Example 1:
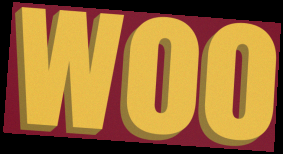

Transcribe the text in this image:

woo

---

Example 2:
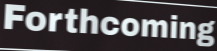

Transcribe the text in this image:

Forthcoming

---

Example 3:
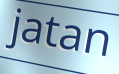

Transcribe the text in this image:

jatan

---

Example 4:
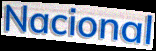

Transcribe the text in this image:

Nacional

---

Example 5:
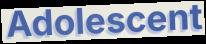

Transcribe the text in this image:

Adolescent